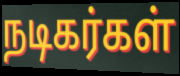
நடிகர்கள்